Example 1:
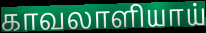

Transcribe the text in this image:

காவலாளியாய்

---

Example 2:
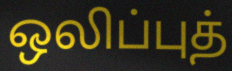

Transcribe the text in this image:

ஒலிப்புத்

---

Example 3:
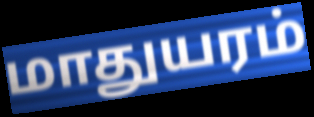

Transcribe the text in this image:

மாதுயரம்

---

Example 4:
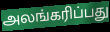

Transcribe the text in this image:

அலங்கரிப்பது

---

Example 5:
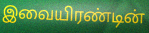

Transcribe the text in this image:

இவையிரண்டின்